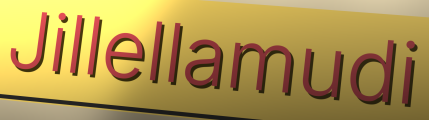
Jillellamudi